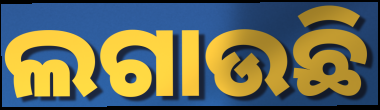
ଲଗାଉଛି